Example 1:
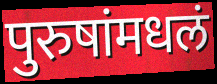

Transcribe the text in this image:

पुरुषांमधलं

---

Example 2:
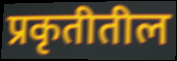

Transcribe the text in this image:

प्रकृतीतील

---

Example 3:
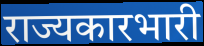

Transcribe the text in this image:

राज्यकारभारी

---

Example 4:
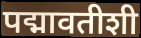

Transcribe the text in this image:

पद्मावतीशी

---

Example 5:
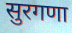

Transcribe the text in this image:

सुरगणा